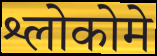
श्लोकोमे